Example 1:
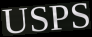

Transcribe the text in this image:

USPS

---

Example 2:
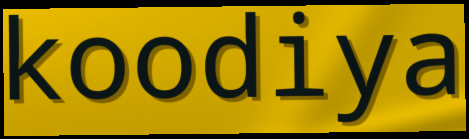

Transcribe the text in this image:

koodiya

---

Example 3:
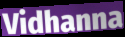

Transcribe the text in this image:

Vidhanna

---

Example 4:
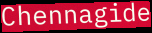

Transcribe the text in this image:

Chennagide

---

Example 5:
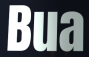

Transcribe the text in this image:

Bua